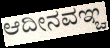
ಆದೀನವಞ್ಚ